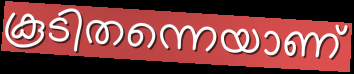
കൂടിതന്നെയാണ്